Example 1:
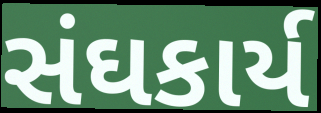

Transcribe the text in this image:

સંઘકાર્ય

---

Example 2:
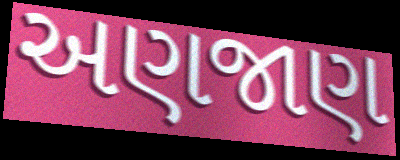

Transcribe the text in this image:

અણજાણ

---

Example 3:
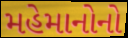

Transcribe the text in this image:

મહેમાનોનો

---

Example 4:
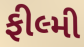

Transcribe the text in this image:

ફીલ્મી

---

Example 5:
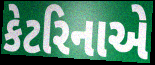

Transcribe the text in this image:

કેટરિનાએ